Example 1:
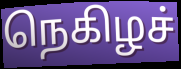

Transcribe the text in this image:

நெகிழச்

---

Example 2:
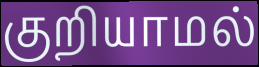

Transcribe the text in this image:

குறியாமல்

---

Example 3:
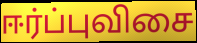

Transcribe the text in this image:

ஈர்ப்புவிசை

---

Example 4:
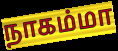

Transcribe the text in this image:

நாகம்மா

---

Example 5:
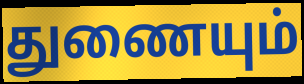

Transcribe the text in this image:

துணையும்